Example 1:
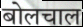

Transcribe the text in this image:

बोलचाल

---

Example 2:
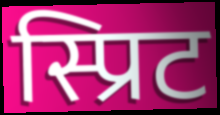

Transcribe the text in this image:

स्प्रिट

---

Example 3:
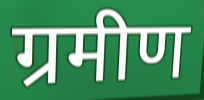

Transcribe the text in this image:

ग्रमीण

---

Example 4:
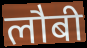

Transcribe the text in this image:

लौबी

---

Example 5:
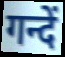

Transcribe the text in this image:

गन्दें